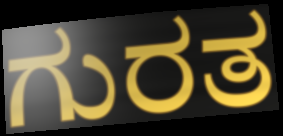
ಗುರತ